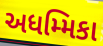
અધમ્મિકા